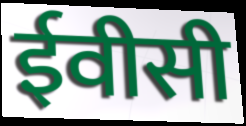
ईवीसी